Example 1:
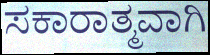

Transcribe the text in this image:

ಸಕಾರಾತ್ಮವಾಗಿ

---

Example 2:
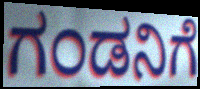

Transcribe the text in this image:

ಗಂಡನಿಗೆ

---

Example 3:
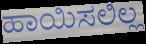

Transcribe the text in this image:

ಹಾಯಿಸಲಿಲ್ಲ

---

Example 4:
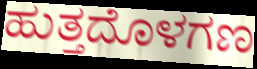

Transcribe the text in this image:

ಹುತ್ತದೊಳಗಣ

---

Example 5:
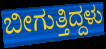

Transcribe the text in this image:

ಬೀಗುತ್ತಿದ್ದಳು